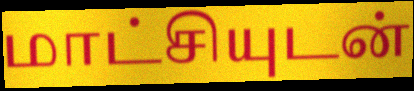
மாட்சியுடன்